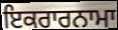
ਇਕਰਾਰਨਾਮਾ